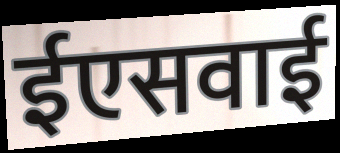
ईएसवाई